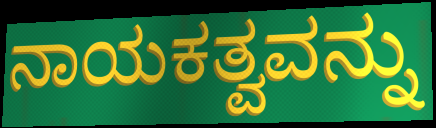
ನಾಯಕತ್ವವನ್ನು